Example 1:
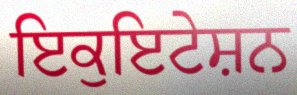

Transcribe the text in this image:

ਇਕੁਇਟੇਸ਼ਨ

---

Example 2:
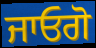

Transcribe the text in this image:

ਜਾਓਗੋ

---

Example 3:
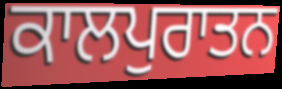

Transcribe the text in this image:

ਕਾਲਪੁਰਾਤਨ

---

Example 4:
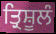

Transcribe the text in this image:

ਤ੍ਰਿਸ਼ੂਲੰ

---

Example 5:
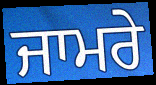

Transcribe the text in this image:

ਜਾਮਰੇ